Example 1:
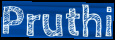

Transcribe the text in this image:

Pruthi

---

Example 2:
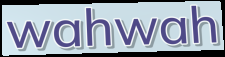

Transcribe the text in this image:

wahwah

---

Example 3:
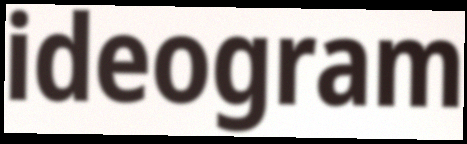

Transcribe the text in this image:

ideogram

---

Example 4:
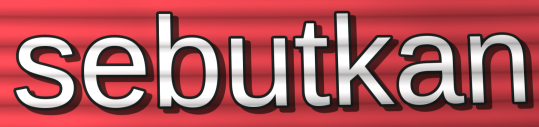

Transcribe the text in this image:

sebutkan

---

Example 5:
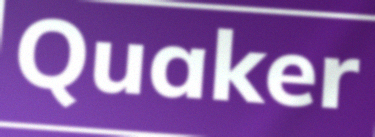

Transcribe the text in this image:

Quaker